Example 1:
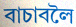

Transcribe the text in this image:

বাচাবলৈ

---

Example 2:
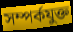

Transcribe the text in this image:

সম্পৰ্কযুক্ত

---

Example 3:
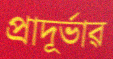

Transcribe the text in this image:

প্ৰাদূৰ্ভাৱ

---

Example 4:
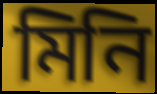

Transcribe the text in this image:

মিনি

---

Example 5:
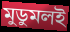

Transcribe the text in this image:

মুডুমলই